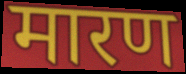
मारण